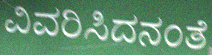
ವಿವರಿಸಿದನಂತೆ